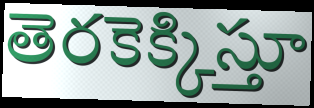
తెరకెక్కిస్తూ